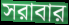
সরাবার